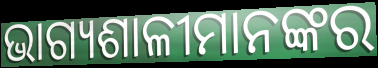
ଭାଗ୍ୟଶାଳୀମାନଙ୍କର